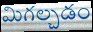
మిగల్చడం